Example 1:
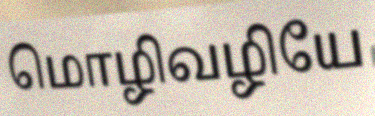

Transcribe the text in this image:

மொழிவழியே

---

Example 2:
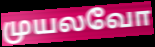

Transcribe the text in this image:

முயலவோ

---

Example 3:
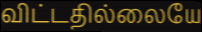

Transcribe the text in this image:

விட்டதில்லையே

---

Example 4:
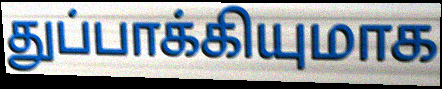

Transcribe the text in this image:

துப்பாக்கியுமாக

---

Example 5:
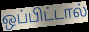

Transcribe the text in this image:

ஒப்பிட்டால்